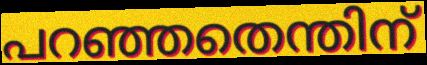
പറഞ്ഞതെന്തിന്